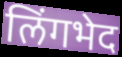
लिंगभेद